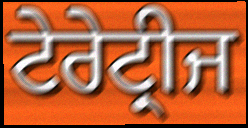
ਟੇਰੇਟ੍ਰੀਜ